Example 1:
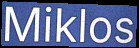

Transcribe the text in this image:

Miklos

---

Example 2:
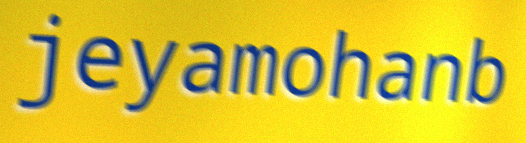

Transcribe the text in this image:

jeyamohanb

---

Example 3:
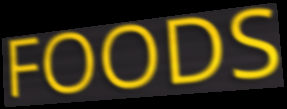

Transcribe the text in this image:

FOODS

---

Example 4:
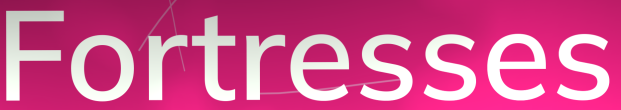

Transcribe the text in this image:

Fortresses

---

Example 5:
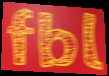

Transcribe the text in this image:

fbl